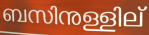
ബസിനുള്ളില്